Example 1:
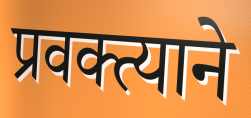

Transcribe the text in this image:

प्रवक्त्याने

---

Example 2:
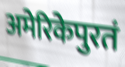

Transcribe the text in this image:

अमेरिकेपुरतं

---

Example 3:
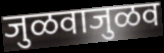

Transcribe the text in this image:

जुळवाजुळव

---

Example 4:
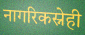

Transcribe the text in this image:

नागरिकस्नेही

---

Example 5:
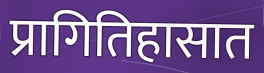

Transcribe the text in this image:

प्रागितिहासात